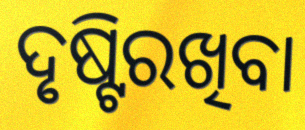
ଦୃଷ୍ଟିରଖିବା